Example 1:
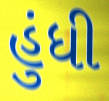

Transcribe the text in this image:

હુંધી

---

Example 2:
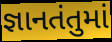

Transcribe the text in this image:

જ્ઞાનતંતુમાં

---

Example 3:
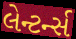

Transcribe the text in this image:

લેન્ટર્ન્સ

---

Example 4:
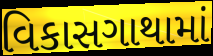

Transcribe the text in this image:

વિકાસગાથામાં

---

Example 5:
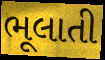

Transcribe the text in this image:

ભૂલાતી